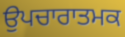
ਉਪਚਾਰਾਤਮਕ